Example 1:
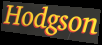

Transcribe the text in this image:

Hodgson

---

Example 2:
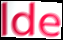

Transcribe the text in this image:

lde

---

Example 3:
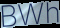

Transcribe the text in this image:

BWh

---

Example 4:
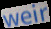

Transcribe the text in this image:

weir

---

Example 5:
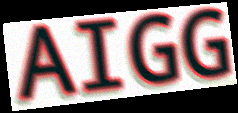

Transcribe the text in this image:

AIGG